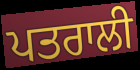
ਪਤਰਾਲੀ